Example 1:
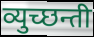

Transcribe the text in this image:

व्युच्छन्ती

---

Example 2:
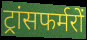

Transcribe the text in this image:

ट्रांसफर्मरों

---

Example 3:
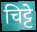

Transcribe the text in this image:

चिट्टे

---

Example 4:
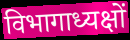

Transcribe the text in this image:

विभागाध्यक्षों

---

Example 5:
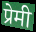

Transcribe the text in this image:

प्रेमी